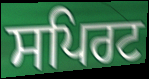
ਸਪਿਰਟ